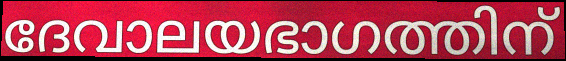
ദേവാലയഭാഗത്തിന്